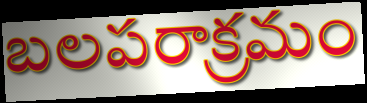
బలపరాక్రమం